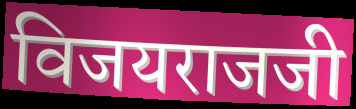
विजयराजजी